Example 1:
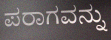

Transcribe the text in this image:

ಪರಾಗವನ್ನು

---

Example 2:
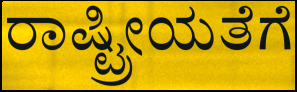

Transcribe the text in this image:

ರಾಷ್ಟ್ರೀಯತೆಗೆ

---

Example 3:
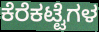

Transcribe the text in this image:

ಕೆರೆಕಟ್ಟೆಗಳ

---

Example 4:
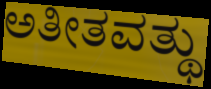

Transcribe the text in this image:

ಅತೀತವತ್ಥು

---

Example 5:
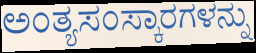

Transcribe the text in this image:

ಅಂತ್ಯಸಂಸ್ಕಾರಗಳನ್ನು